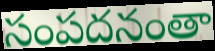
సంపదనంతా